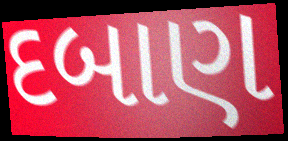
દબાણ